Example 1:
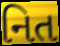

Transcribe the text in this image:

નિત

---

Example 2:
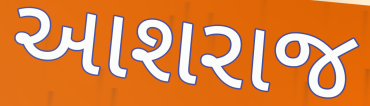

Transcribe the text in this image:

આશરાજ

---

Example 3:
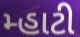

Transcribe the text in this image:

મ્હાટી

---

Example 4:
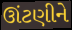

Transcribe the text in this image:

ઊંટણીને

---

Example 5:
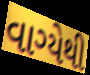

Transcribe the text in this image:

વાગ્યેથી